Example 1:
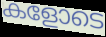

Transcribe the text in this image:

കളോടെ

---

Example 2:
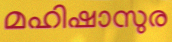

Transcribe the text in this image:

മഹിഷാസുര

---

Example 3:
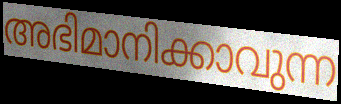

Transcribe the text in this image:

അഭിമാനിക്കാവുന്ന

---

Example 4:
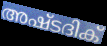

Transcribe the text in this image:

അഷ്ടദിക്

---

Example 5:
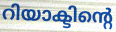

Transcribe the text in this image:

റിയാക്ടിന്റെ